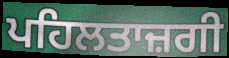
ਪਹਿਲਤਾਜ਼ਗੀ